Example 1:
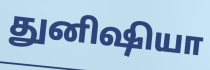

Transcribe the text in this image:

துனிஷியா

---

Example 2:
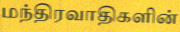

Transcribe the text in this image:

மந்திரவாதிகளின்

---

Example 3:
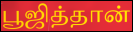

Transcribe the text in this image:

பூஜித்தான்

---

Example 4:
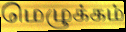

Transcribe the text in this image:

மெழுக்கம்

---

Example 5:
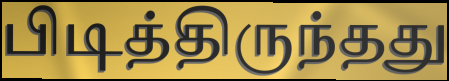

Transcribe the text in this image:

பிடித்திருந்தது